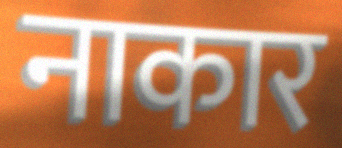
नाकार